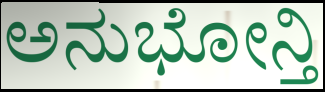
ಅನುಭೋನ್ತಿ